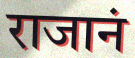
राजानं